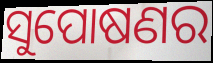
ସୁପୋଷଣର